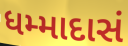
ધમ્માદાસં